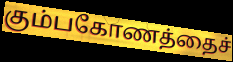
கும்பகோணத்தைச்